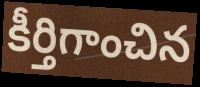
కీర్తిగాంచిన